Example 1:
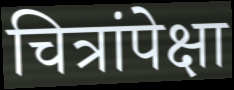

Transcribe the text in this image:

चित्रांपेक्षा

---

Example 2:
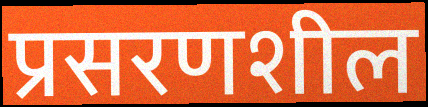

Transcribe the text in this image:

प्रसरणशील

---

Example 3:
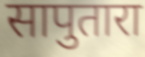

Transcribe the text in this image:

सापुतारा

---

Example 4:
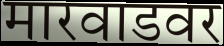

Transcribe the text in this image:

मारवाडवर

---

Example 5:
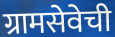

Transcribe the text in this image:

ग्रामसेवेची